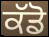
ਕੱਡੋ